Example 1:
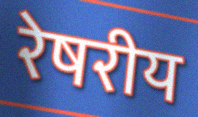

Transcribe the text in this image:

रेषरीय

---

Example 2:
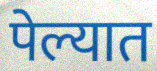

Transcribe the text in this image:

पेल्यात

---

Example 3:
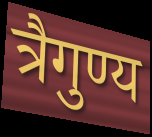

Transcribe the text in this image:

त्रैगुण्य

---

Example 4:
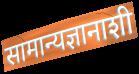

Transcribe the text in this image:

सामान्यज्ञानाशी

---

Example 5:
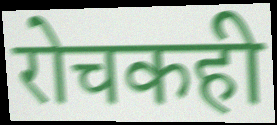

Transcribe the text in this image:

रोचकही